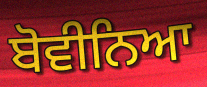
ਬੋਵੀਨਿਆ